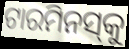
ଟାରମିନସ୍‌କୁ